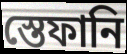
স্তেফানি